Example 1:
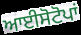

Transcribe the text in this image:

ਆਈਸੋਟੋਪਾਂ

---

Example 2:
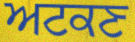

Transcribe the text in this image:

ਅਟਕਣ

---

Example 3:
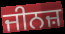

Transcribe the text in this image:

ਜੀਨਜ਼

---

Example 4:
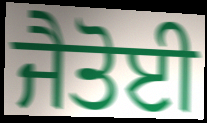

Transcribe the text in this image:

ਜੈਤੋਈ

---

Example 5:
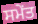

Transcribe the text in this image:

ਸਮੇਂਤ